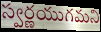
స్వర్ణయుగమని